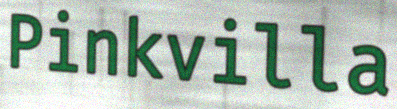
Pinkvilla